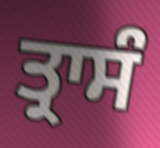
ਤ੍ਰਾਸੰ